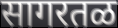
सागरतळ